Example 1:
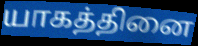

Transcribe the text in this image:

யாகத்தினை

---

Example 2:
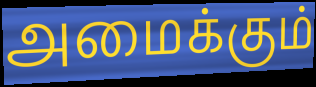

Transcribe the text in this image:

அமைக்கும்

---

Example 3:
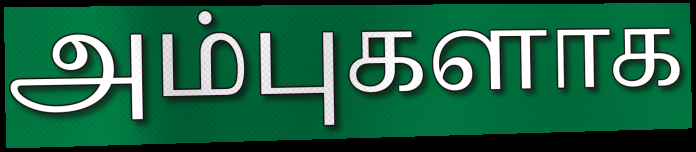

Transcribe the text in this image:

அம்புகளாக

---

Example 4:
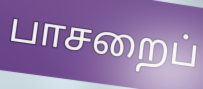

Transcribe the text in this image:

பாசறைப்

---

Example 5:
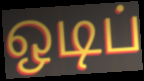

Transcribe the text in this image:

ஒடிப்